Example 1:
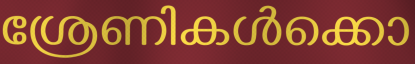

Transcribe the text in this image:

ശ്രേണികൾക്കൊ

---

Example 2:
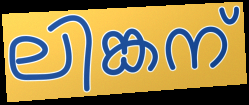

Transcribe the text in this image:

ലിങ്കന്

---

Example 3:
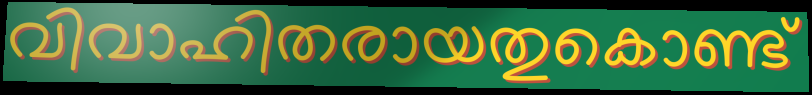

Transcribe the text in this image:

വിവാഹിതരായതുകൊണ്ട്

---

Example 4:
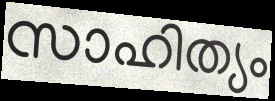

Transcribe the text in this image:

സാഹിത്യം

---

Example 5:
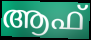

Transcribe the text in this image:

ആഫ്